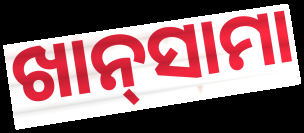
ଖାନ୍‌ସାମା